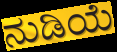
ನುಡಿಯೆ